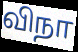
விநா